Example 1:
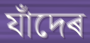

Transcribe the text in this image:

যাঁদেৰ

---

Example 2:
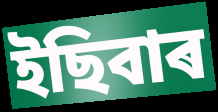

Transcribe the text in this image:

ইছিবাৰ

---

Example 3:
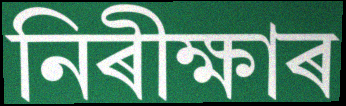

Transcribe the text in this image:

নিৰীক্ষাৰ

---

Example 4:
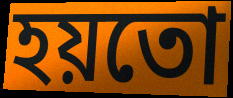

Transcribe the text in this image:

হয়তো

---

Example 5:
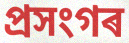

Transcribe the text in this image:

প্ৰসংগৰ